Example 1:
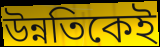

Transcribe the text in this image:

উন্নতিকেই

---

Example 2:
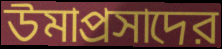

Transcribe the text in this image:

উমাপ্রসাদের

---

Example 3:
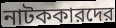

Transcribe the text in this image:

নাটককারদের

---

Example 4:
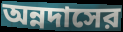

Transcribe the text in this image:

অন্নদাসের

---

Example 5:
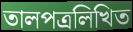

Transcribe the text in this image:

তালপত্রলিখিত